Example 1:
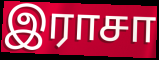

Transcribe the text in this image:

இராசா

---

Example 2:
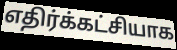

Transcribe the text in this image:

எதிர்க்கட்சியாக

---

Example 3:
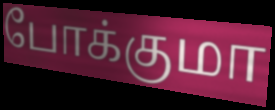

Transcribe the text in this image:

போக்குமா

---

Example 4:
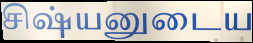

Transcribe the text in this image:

சிஷ்யனுடைய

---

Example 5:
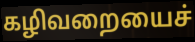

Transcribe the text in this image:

கழிவறையைச்